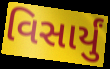
વિસાર્યું